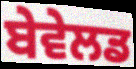
ਬੇਵੇਲਡ